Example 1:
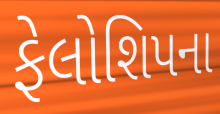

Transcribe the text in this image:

ફેલોશિપના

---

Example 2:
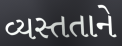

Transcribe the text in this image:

વ્યસ્તતાને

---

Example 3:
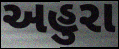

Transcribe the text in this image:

અહુરા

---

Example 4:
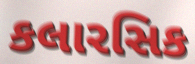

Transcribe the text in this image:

કલારસિક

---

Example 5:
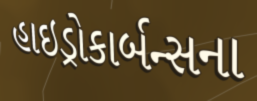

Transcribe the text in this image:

હાઇડ્રોકાર્બન્સના